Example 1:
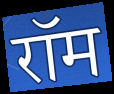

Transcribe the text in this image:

रॉम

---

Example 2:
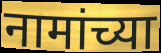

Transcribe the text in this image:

नामांच्या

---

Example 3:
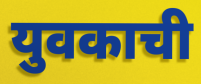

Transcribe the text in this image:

युवकाची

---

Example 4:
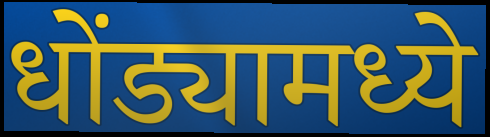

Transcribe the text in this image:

धोंड्यामध्ये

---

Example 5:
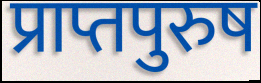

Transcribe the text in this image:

प्राप्तपुरुष